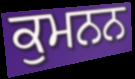
ਕੁਮਨਨ